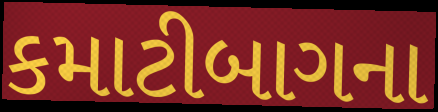
કમાટીબાગના